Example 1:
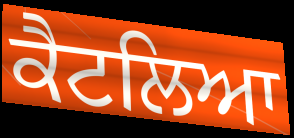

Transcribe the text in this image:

ਕੈਟਲਿਆ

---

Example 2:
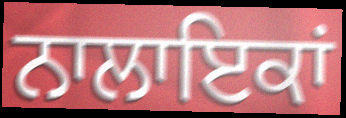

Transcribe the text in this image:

ਨਾਲਾਇਕਾਂ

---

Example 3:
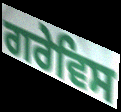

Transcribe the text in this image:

ਗਰੇਵਿਸ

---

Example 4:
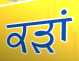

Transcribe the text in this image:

ਕੜਾਂ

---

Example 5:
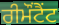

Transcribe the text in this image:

ਰੀਮੌਂਟੈਂਟ